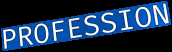
PROFESSION